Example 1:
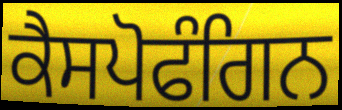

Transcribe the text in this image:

ਕੈਸਪੋਫੰਗਿਨ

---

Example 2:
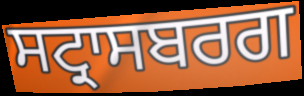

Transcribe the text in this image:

ਸਟ੍ਰਾਸਬਰਗ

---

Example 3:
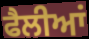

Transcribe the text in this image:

ਫੈਲੀਆਂ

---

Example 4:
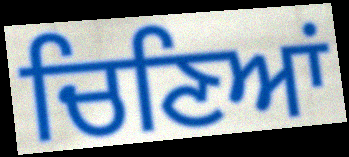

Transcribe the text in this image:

ਚਿਣਿਆਂ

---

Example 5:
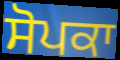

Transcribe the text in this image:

ਸੋਪਕਾ